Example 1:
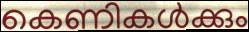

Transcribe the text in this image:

കെണികൾക്കും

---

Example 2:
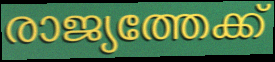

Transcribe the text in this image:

രാജ്യത്തേക്ക്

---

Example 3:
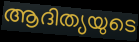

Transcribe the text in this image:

ആദിത്യയുടെ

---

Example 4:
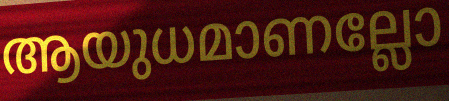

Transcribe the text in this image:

ആയുധമാണല്ലോ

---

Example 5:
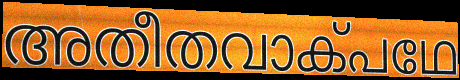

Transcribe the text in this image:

അതീതവാക്പഥേ